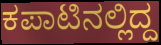
ಕಪಾಟಿನಲ್ಲಿದ್ದ